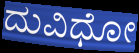
ದುವಿಧೋ